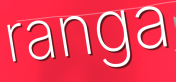
ranga